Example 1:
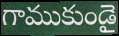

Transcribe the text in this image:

గాముకుండై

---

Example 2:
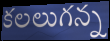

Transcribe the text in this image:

కలలుగన్న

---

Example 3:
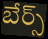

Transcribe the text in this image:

బేర్స్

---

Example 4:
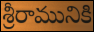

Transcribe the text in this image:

శ్రీరామునికి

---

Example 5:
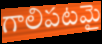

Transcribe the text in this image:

గాలిపటమై